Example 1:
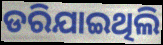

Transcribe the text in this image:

ଡରିଯାଇଥିଲି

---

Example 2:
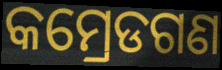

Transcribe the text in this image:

କମ୍ରେଡଗଣ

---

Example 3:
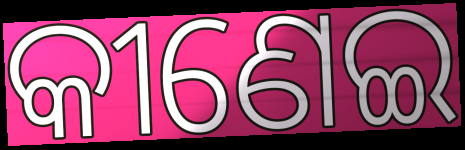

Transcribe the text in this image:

କୀଣେଇ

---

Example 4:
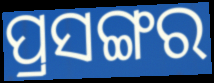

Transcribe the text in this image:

ପ୍ରସଙ୍ଗର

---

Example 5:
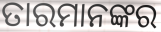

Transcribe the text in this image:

ତାରମାନଙ୍କର